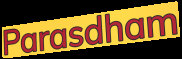
Parasdham